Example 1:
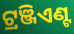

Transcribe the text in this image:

ଟ୍ରଞ୍ଜିଏଣ୍ଟ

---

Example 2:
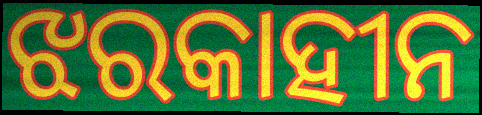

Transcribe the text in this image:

ଝରକାହୀନ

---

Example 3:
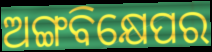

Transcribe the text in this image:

ଅଙ୍ଗବିକ୍ଷେପର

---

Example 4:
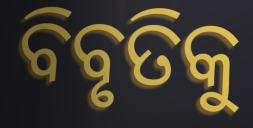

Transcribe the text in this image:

ବିବୃତିକୁ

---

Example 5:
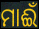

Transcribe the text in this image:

ମାଈଁ